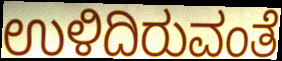
ಉಳಿದಿರುವಂತೆ